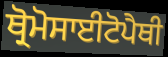
ਥ੍ਰੋਮੋਸਾਈਟੋਪੈਥੀ